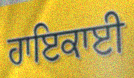
ਹਾਇਕਾਈ